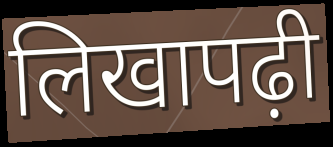
लिखापढ़ी